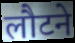
लौटने